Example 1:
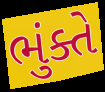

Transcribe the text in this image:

ભુંક્તે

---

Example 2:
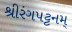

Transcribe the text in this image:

શ્રીરંગપટ્ટનમ્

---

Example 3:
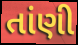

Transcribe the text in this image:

તાંણી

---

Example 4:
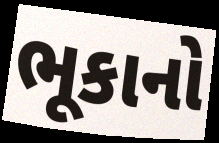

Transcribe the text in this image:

ભૂકાનો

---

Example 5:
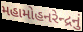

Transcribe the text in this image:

મહામોહનરેન્દ્રનું